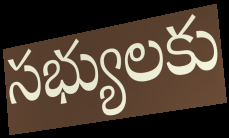
సభ్యులకు